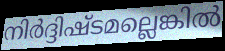
നിർദ്ദിഷ്ടമല്ലെങ്കിൽ